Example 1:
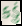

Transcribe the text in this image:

કડું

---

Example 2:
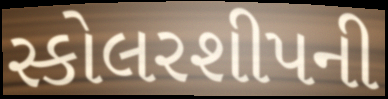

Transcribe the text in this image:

સ્કોલરશીપની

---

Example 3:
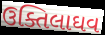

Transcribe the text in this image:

ઉક્તિલાઘવ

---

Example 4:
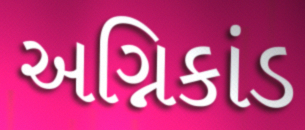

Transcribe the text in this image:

અગ્નિકાંડ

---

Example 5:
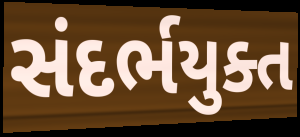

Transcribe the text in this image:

સંદર્ભયુક્ત